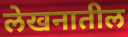
लेखनातील